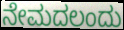
ನೇಮದಲಂದು